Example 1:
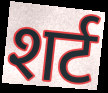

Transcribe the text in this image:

शर्ट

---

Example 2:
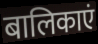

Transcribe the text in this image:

बालिकाएं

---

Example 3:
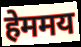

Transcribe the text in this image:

हेममय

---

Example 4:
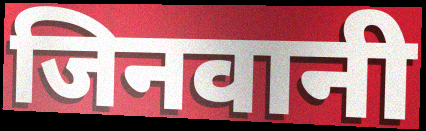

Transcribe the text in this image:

जिनवानी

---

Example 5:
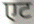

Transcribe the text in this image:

एट